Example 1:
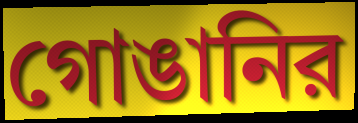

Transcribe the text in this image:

গোঙানির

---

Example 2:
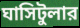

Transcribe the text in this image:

ঘাসিটুলার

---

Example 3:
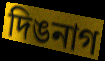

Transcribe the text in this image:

দিঙনাগ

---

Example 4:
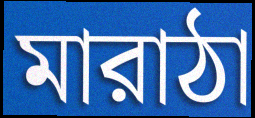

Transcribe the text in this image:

মারাঠা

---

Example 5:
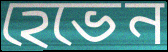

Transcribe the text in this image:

হেভেন